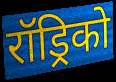
रॉड्रिको